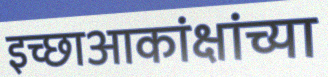
इच्छाआकांक्षांच्या